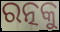
ରତ୍ନକୁ